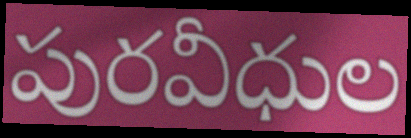
పురవీధుల